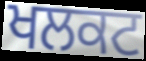
ਖਲਕਟ